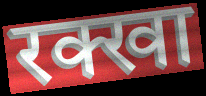
रक्‍खा